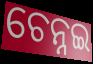
ଚେନ୍ନଇ